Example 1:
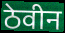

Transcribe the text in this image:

ठेवीन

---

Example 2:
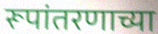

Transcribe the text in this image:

रूपांतरणाच्या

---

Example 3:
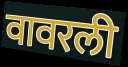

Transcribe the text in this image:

वावरली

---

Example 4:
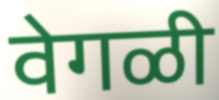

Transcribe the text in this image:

वेगळी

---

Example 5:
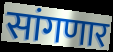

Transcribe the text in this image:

सांगणार